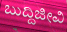
ಬುದ್ದಿಜೀವಿ